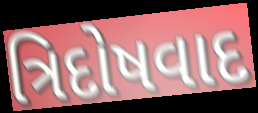
ત્રિદોષવાદ